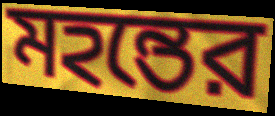
মহন্তের